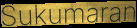
Sukumaran